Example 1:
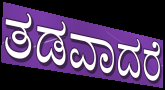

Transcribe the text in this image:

ತಡವಾದರೆ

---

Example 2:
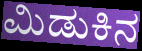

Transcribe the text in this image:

ಮಿಡುಕಿನ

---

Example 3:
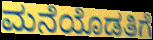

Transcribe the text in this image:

ಮನೆಯೊಡತಿಗೆ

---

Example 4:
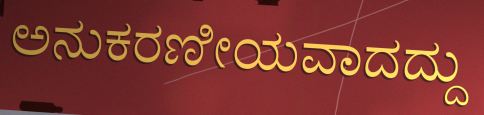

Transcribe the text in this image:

ಅನುಕರಣೀಯವಾದದ್ದು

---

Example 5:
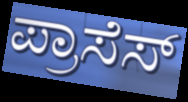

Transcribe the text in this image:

ಪ್ರಾಸೆಸ್